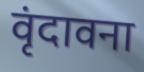
वृंदावना